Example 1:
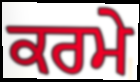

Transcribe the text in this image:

ਕਰਮੇ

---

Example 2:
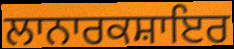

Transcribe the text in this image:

ਲਾਨਾਰਕਸ਼ਾਇਰ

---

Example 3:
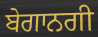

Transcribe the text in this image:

ਬੇਗਾਨਗੀ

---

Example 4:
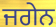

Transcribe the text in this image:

ਜਗੇਨ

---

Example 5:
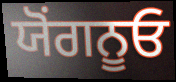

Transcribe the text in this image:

ਯੋਂਗਨੂਓ